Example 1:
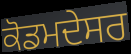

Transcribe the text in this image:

ਕੋਡਮਦੇਸਰ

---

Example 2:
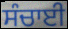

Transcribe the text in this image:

ਸੰਚਾਈ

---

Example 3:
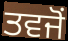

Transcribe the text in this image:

ਤਵਜੋਂ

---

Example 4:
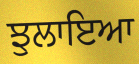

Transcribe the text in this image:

ਝੁਲਾਇਆ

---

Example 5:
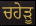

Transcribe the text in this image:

ਚਹੇੜੂ